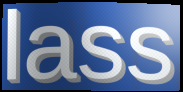
lass